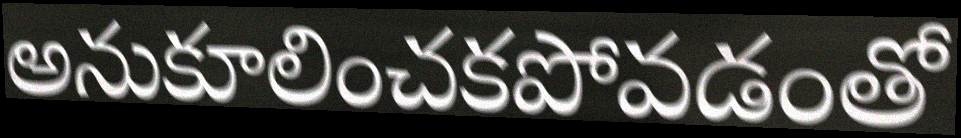
అనుకూలించకపోవడంతో